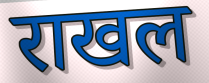
राखल